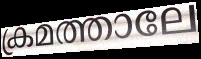
ക്രമത്താലേ